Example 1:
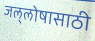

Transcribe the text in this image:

जल्लोषासाठी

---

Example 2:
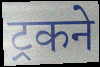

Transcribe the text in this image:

ट्रकने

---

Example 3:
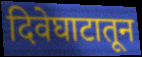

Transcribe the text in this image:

दिवेघाटातून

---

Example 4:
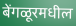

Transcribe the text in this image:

बेंगळूरमधील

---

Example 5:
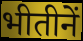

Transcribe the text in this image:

भीतीनें